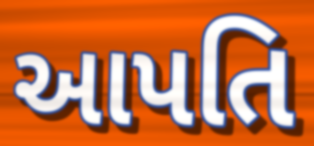
આપતિ